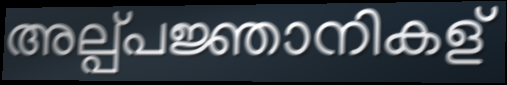
അല്പ്പജ്ഞാനികള്